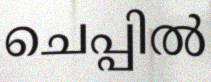
ചെപ്പിൽ